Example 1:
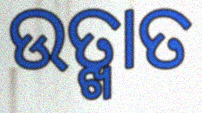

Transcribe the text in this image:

ଉତ୍ଖାତ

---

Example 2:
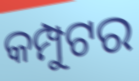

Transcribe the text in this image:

କମ୍ପୁଟର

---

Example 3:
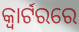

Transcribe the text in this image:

କ୍ଵାର୍ଟରରେ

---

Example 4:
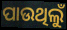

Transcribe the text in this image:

ପାଉଥିଲୁଁ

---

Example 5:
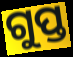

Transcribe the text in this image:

ଗୁପ୍ତ